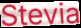
Stevia